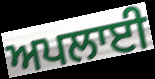
ਅਪਲਾਈ